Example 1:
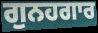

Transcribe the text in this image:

ਗੁਨਹਗਾਰ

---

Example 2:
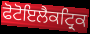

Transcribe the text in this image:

ਫੋਟੋਇਲੈਕਟ੍ਰਿਕ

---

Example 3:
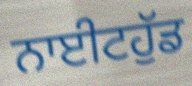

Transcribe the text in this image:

ਨਾਈਟਹੁੱਡ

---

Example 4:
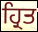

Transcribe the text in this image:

ਹ੍ਰਿਤ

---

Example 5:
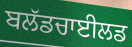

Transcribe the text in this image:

ਬਲੱਡਚਾਈਲਡ